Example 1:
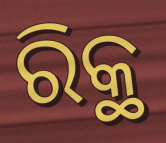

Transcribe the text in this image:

ରିକ୍ଥ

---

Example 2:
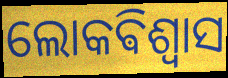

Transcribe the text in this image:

ଲୋକଵିଶ୍ଵାସ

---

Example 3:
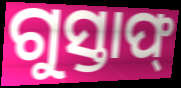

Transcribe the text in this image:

ଗୁସ୍ତାଫ୍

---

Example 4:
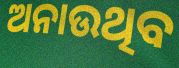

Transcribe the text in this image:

ଅନାଉଥିବ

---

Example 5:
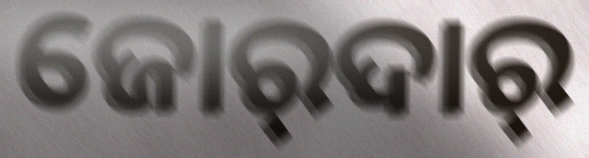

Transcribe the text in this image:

ଜୋର୍‍ଦାର୍